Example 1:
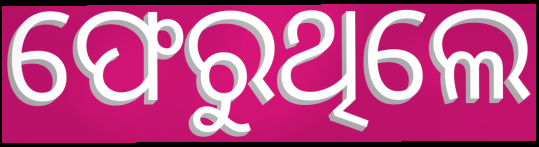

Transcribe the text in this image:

ଫେରୁଥିଲେ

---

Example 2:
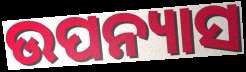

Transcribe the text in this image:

ଉପନ୍ୟାସ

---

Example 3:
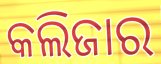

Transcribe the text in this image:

କଲିଜାର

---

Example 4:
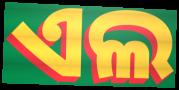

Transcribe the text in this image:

ଏଲ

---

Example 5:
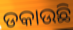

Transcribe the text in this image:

ଡକାଉଛି